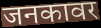
जनकावर